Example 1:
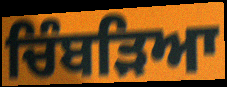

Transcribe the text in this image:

ਚਿੰਬੜਿਆ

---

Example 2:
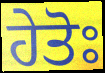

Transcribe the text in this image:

ਹੇਤੋਃ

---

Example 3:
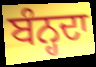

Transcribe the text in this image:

ਬੰਨ੍ਹਦਾ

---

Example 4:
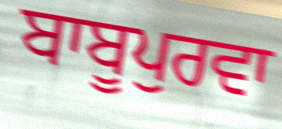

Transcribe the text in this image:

ਬਾਬੂਪੁਰਵਾ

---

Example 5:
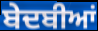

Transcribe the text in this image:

ਬੇਦਬੀਆਂ